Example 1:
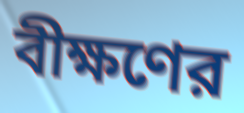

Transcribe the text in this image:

বীক্ষণের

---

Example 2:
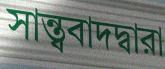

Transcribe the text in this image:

সান্ত্ববাদদ্বারা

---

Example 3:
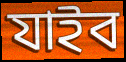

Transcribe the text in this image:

যাইব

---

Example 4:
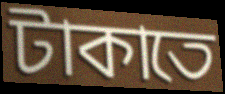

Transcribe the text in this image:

টাকাতে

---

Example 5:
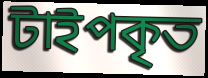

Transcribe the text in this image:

টাইপকৃত